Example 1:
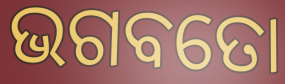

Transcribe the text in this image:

ଭଗବତୋ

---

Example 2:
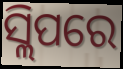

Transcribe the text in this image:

ସ୍ଲିପରେ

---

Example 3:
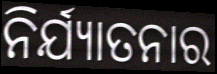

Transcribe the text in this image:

ନିର୍ଯ୍ୟାତନାର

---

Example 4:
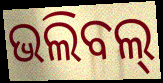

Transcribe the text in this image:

ଭଲିବଲ୍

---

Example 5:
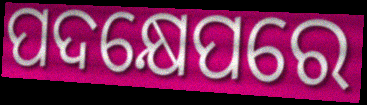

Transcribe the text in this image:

ପଦକ୍ଷେପରେ